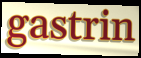
gastrin